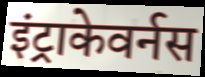
इंट्राकेवर्नस